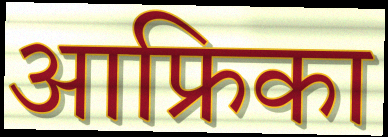
आफ्रिका